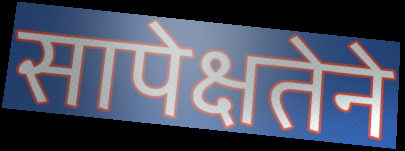
सापेक्षतेने